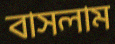
বাসলাম